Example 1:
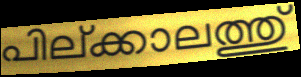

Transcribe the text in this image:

പില്ക്കാലത്തു്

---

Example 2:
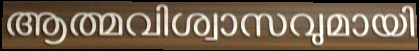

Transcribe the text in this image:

ആത്മവിശ്വാസവുമായി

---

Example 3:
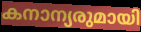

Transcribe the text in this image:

കനാന്യരുമായി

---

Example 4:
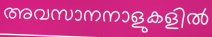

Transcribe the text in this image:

അവസാനനാളുകളിൽ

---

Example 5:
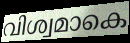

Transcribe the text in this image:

വിശ്വമാകെ